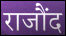
राजौंद